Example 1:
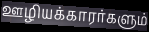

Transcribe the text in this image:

ஊழியக்காரர்களும்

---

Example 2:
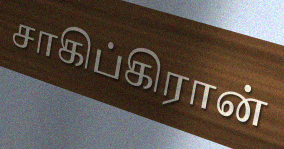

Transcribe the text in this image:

சாகிப்கிரான்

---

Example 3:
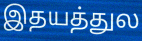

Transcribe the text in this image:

இதயத்துல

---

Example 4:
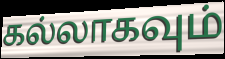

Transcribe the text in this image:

கல்லாகவும்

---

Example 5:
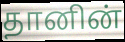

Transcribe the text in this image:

தானின்